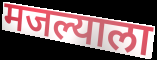
मजल्याला